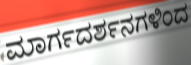
ಮಾರ್ಗದರ್ಶನಗಳಿಂದ